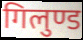
गिलुण्ड